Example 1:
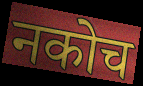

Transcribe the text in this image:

नकोच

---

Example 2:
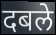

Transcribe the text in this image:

दबले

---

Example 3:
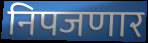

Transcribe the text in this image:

निपजणार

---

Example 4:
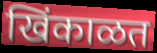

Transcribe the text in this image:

खिंकाळत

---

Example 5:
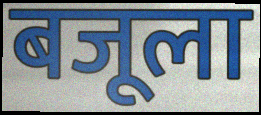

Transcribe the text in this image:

बजूला